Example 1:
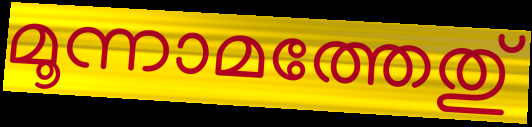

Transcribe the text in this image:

മൂന്നാമത്തേതു്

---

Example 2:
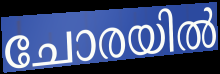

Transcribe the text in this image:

ചോരയിൽ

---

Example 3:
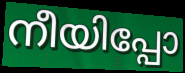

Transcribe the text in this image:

നീയിപ്പോ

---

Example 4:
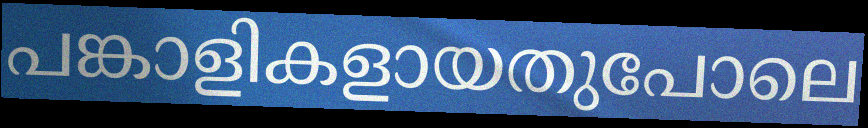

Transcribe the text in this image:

പങ്കാളികളായതുപോലെ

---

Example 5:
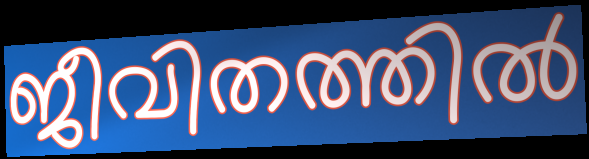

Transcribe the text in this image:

ജീവിതത്തിൽ